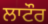
ਲਾਟੌਰ